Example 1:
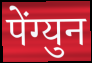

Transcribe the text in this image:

पेंग्युन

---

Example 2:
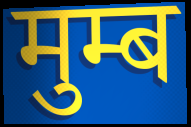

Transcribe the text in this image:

मुम्ब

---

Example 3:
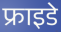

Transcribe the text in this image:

फ्राइडे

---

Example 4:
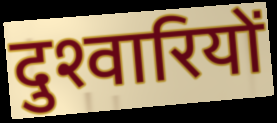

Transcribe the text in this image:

दुश्वारियों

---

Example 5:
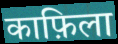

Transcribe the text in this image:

काफ़िला